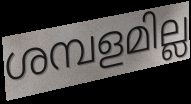
ശമ്പളമില്ല